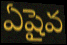
ఏషైవ